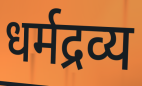
धर्मद्रव्य